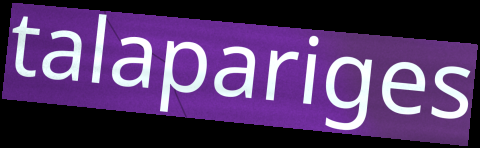
talapariges